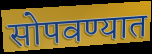
सोपवण्यात